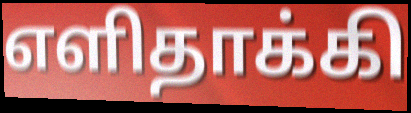
எளிதாக்கி